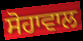
ਸੋਹਾਵਾਲ